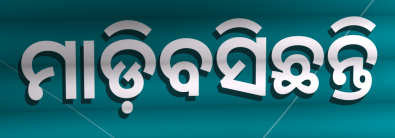
ମାଡ଼ିବସିଛନ୍ତି